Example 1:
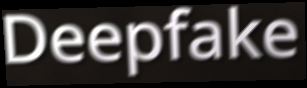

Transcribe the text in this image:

Deepfake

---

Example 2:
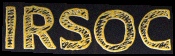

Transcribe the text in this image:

IRSOC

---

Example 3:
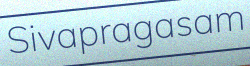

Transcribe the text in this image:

Sivapragasam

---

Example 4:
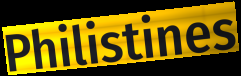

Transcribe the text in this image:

Philistines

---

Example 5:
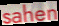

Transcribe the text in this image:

sahen